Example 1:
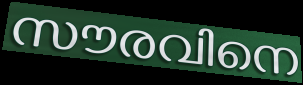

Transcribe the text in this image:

സൗരവിനെ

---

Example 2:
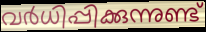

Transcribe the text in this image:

വർധിപ്പിക്കുന്നുണ്ട്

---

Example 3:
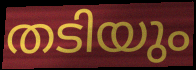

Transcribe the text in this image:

തടിയും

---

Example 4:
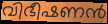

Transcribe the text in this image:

വിഭീഷണൻ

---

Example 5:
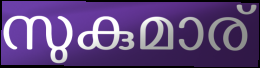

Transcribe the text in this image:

സുകുമാര്